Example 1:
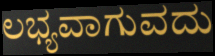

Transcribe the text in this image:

ಲಭ್ಯವಾಗುವದು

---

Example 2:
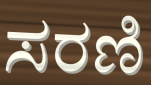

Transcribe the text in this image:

ಸರಣಿ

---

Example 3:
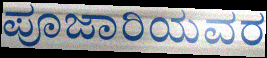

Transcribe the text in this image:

ಪೂಜಾರಿಯವರ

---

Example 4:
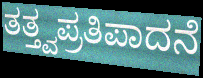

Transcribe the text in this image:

ತತ್ತ್ವಪ್ರತಿಪಾದನೆ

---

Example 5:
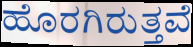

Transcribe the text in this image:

ಹೊರಗಿರುತ್ತವೆ